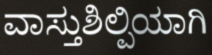
ವಾಸ್ತುಶಿಲ್ಪಿಯಾಗಿ